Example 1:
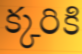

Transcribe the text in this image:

క్కరికి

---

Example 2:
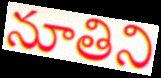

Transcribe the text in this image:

నూతిని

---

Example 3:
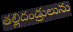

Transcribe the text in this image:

తల్లిదండ్రులును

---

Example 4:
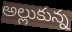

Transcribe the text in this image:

అల్లుకున్న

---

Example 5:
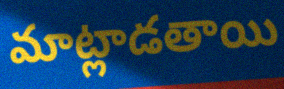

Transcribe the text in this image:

మాట్లాడతాయి